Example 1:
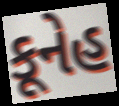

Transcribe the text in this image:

કૂનેહ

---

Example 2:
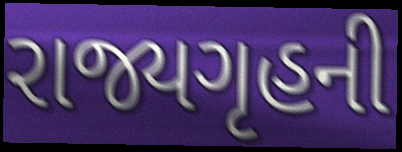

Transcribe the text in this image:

રાજ્યગૃહની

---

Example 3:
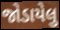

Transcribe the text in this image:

જોડાયેલુ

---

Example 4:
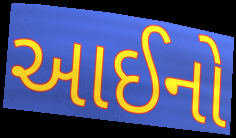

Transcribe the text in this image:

આઈનો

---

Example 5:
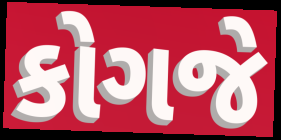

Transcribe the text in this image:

કોગજે